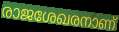
രാജശേഖരനാണ്